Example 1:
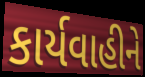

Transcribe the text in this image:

કાર્યવાહીને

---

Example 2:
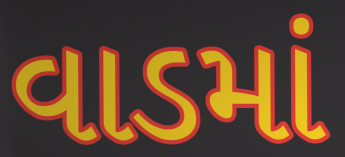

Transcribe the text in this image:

વાડમાં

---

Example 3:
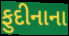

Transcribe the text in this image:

ફુદીનાના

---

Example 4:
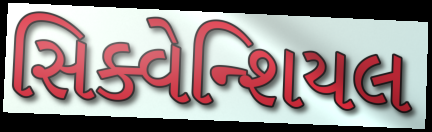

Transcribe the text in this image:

સિક્વેન્શિયલ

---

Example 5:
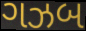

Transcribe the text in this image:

ગઝબ